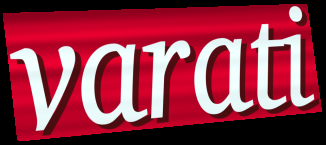
varati